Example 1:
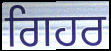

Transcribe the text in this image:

ਗਿਹਰ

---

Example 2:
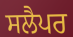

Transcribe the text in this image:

ਸਲੈਪਰ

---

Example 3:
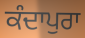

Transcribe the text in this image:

ਕੰਦਾਪੁਰਾ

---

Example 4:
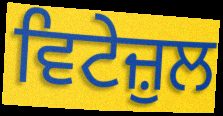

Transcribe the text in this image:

ਵਿਟੇਜ਼ੁਲ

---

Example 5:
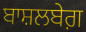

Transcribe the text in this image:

ਬਾਸ਼ਲਬੇਗ਼